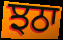
ਝਠਾ